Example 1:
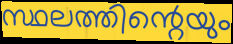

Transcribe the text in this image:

സ്ഥലത്തിന്റെയും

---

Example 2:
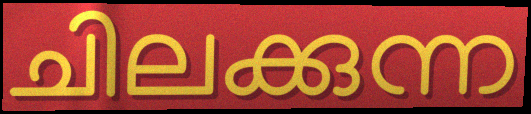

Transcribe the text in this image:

ചിലക്കുന്ന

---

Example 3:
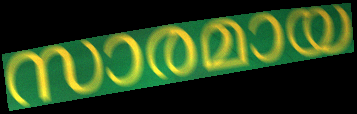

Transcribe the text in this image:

സാരമായ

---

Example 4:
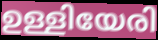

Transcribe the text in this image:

ഉള്ളിയേരി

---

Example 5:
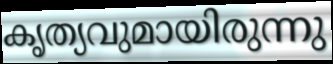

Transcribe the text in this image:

കൃത്യവുമായിരുന്നു